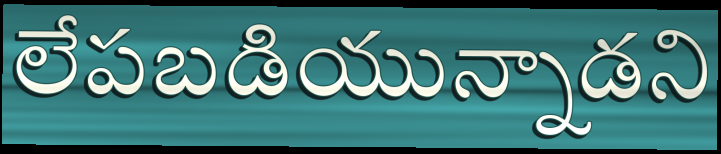
లేపబడియున్నాడని